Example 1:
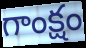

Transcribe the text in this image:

గాంక్షం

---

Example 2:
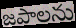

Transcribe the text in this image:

జపాలను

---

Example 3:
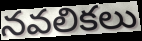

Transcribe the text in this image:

నవలికలు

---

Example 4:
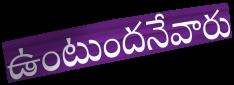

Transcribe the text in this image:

ఉంటుందనేవారు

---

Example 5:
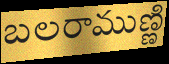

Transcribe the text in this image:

బలరాముణ్ణి